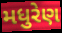
મધુરેણ